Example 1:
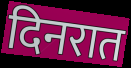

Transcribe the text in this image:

दिनरात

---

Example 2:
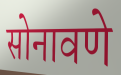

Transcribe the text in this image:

सोनावणे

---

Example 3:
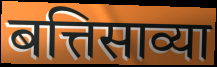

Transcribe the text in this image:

बत्तिसाव्या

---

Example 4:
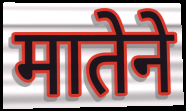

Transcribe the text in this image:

मातेने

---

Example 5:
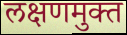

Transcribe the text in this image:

लक्षणमुक्त